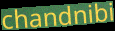
chandnibi